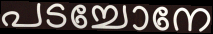
പടച്ചോനേ